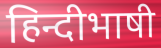
हिन्दीभाषी